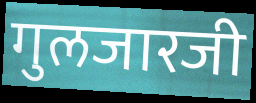
गुलजारजी